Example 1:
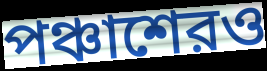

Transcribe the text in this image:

পঞ্চাশেরও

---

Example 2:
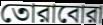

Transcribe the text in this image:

তোরাবোরা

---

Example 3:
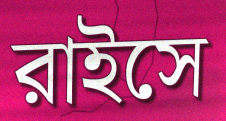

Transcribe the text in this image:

রাইসে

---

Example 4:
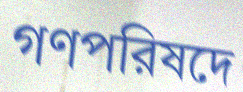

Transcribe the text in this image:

গণপরিষদে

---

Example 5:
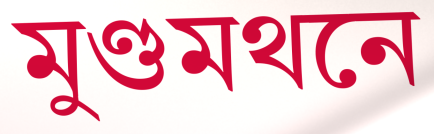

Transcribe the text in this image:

মুণ্ডমথনে